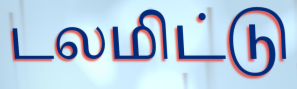
டலமிட்டு